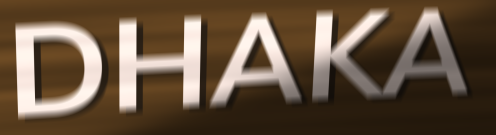
DHAKA